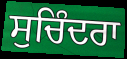
ਸੁਚਿੰਦਰਾ